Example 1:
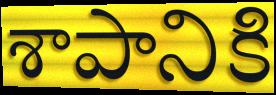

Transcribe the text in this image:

శాపానికి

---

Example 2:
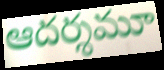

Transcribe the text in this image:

ఆదర్శమూ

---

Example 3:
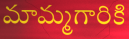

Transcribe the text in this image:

మామ్మగారికి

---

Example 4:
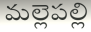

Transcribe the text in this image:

మల్లెపల్లి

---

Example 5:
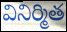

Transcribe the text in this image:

వినిర్మిత